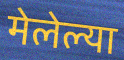
मेलेल्या